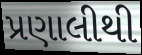
પ્રણાલીથી